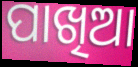
ପାଖିଆ